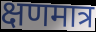
क्षणमात्र